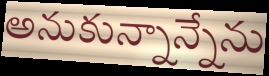
అనుకున్నాన్నేను